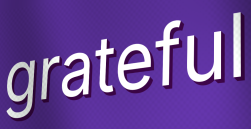
grateful